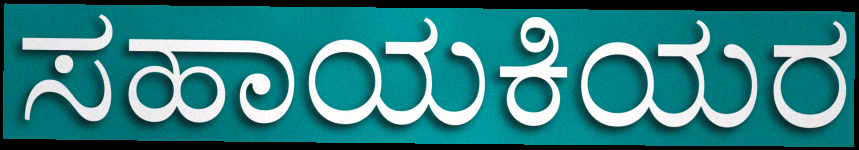
ಸಹಾಯಕಿಯರ